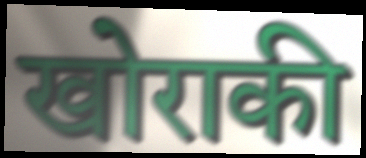
खोराकी